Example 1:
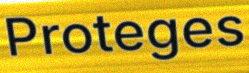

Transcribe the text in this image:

Proteges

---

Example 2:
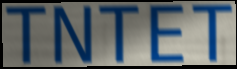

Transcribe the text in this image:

TNTET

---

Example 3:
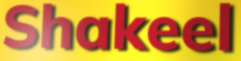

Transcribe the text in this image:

Shakeel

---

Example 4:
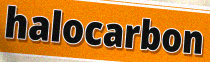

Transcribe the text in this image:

halocarbon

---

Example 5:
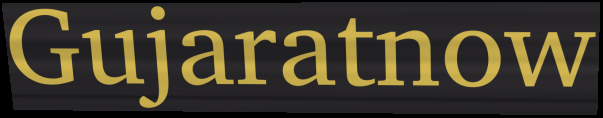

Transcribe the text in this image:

Gujaratnow